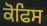
ਕੋਫਿਸ